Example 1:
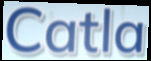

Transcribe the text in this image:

Catla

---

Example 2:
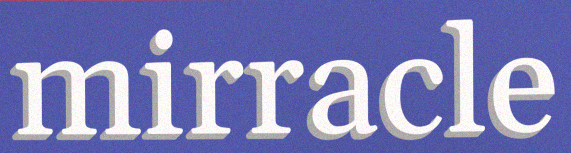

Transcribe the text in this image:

mirracle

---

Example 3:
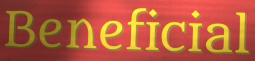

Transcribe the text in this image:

Beneficial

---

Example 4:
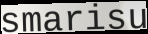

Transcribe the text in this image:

smarisu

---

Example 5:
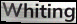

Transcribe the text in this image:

Whiting